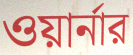
ওয়ার্নার